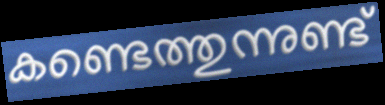
കണ്ടെത്തുന്നുണ്ട്